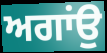
ਅਗਾਂਉ